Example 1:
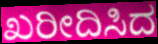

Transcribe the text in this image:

ಖರೀದಿಸಿದ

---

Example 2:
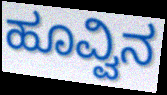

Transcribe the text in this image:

ಹೂವ್ವಿನ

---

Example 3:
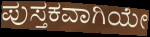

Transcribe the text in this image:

ಪುಸ್ತಕವಾಗಿಯೇ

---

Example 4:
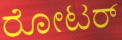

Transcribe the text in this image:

ರೋಟರ್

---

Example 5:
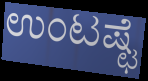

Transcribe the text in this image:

ಉಂಟಷ್ಟೆ